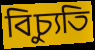
বিচ্যুতি